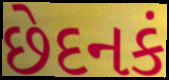
છેદનકં